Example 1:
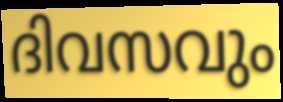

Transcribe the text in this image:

ദിവസവും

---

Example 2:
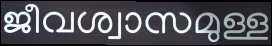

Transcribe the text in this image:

ജീവശ്വാസമുള്ള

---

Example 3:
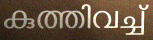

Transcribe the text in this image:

കുത്തിവച്ച്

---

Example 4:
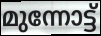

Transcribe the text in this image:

മുന്നോട്ട്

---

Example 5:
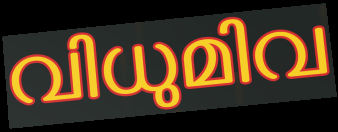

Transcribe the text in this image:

വിധുമിവ